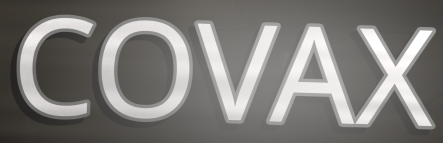
COVAX